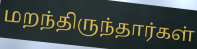
மறந்திருந்தார்கள்